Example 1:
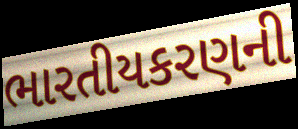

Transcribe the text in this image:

ભારતીયકરણની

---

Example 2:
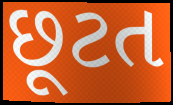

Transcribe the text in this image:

છૂટત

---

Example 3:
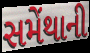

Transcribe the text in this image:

સમેંથાની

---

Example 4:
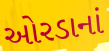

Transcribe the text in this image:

ઓરડાનાં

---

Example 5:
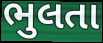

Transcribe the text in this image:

ભુલતા